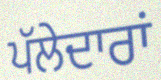
ਪੱਲੇਦਾਰਾਂ